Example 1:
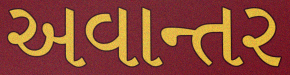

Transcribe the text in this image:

અવાન્તર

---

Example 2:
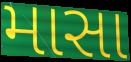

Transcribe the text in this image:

માસા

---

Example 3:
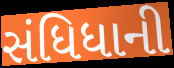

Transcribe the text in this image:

સંધિધાની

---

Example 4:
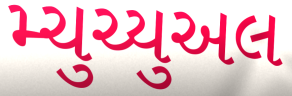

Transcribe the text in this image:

મ્ચુચ્યુઅલ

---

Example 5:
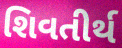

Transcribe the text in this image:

શિવતીર્થ